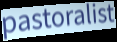
pastoralist